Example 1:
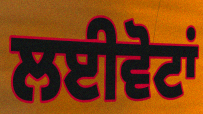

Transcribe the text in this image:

ਲਈਵੋਟਾਂ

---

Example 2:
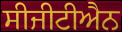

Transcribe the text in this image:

ਸੀਜੀਟੀਐਨ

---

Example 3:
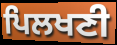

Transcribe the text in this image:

ਪਿਲਖਣੀ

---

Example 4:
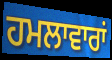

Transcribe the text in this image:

ਹਮਲਾਵਾਰਾਂ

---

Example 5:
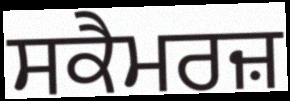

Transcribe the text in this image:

ਸਕੈਮਰਜ਼